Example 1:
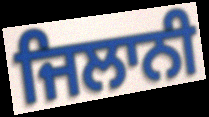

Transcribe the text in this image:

ਜਿਲਾਨੀ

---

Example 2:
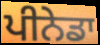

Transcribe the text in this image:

ਪੀਨੇਡਾ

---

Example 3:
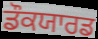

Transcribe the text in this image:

ਡੌਕਯਾਰਡ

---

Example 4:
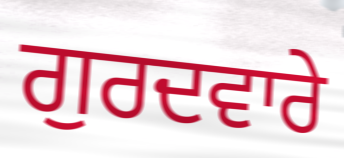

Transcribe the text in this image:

ਗੁਰਦਵਾਰੇ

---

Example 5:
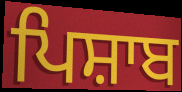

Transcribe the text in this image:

ਪਿਸ਼ਾਬ